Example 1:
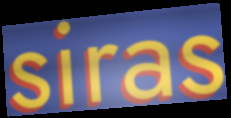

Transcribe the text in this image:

siras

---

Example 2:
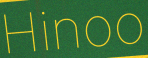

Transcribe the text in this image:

Hinoo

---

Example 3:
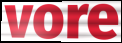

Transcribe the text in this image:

vore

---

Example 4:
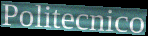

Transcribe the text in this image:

Politecnico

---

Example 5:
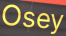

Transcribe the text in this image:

Osey